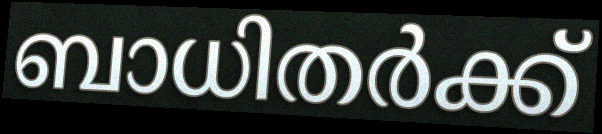
ബാധിതർക്ക്